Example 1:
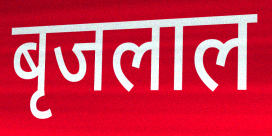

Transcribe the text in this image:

बृजलाल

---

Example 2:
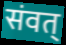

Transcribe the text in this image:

संवत्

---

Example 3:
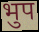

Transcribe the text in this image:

भुप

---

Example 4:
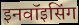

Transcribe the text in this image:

इनवॉइसिंग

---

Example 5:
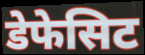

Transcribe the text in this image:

डेफेसिट